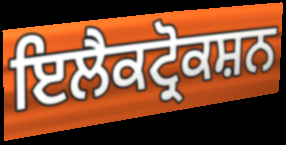
ਇਲੈਕਟ੍ਰੋਕਸ਼ਨ